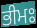
ਭੀਮਃ